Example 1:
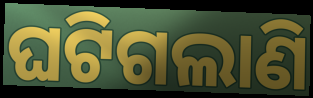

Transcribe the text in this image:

ଘଟିଗଲାଣି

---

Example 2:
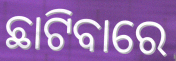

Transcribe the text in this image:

ଛାଟିବାରେ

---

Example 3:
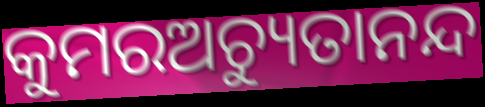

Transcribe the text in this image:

କୁମରଅଚ୍ୟୁତାନନ୍ଦ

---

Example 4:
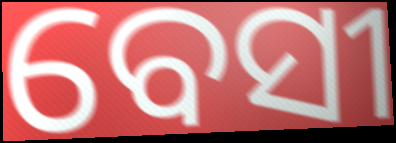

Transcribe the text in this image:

ବେସୀ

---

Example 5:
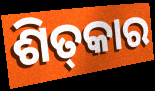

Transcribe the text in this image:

ଶିତ୍‍କାର